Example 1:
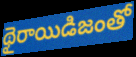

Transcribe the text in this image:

థైరాయిడిజంతో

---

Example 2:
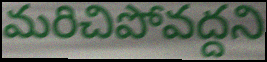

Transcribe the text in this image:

మరిచిపోవద్దని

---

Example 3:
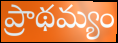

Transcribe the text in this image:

ప్రాథమ్యం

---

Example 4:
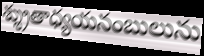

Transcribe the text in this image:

శ్శ్రుతాధ్యయనంబులును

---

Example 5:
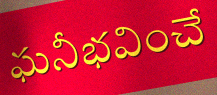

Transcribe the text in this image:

ఘనీభవించే